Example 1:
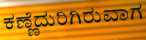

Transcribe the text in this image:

ಕಣ್ಣೆದುರಿಗಿರುವಾಗ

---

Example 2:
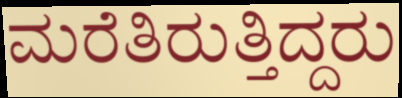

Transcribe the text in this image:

ಮರೆತಿರುತ್ತಿದ್ದರು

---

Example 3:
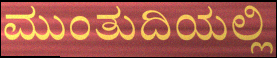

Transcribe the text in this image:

ಮುಂತುದಿಯಲ್ಲಿ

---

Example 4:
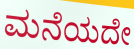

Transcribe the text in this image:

ಮನೆಯದೇ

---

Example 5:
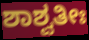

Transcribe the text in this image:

ಶಾಶ್ವತೀಃ